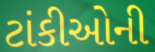
ટાંકીઓની